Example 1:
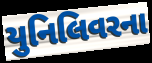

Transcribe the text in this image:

યુનિલિવરના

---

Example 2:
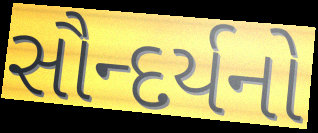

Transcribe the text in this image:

સૌન્દર્યનો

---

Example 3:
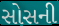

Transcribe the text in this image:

સોસની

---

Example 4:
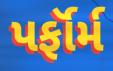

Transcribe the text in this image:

પર્ફૉર્મ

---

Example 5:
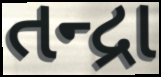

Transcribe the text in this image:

તન્દ્રા